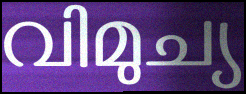
വിമുച്യ